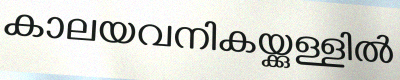
കാലയവനികയ്ക്കുള്ളിൽ